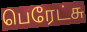
பெரேட்சு